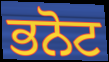
ਭਨੋਟ